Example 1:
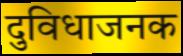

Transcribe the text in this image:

दुविधाजनक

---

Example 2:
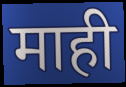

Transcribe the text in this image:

माही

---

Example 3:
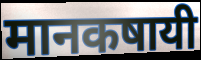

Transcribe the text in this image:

मानकषायी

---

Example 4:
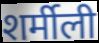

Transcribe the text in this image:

शर्मीली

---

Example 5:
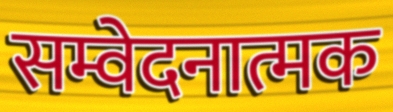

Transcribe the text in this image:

सम्वेदनात्मक